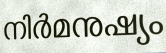
നിർമനുഷ്യം